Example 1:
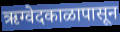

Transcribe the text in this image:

ऋग्वेदकाळापासून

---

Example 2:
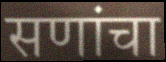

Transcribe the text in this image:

सणांचा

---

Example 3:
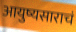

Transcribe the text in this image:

आयुष्यसाराचं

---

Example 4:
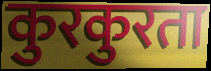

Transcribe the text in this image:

कुरकुरता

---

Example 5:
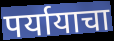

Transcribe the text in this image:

पर्यायाचा